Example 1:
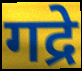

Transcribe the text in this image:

गद्रे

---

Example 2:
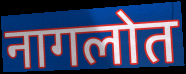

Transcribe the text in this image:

नागलोत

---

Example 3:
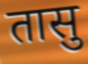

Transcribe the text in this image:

तासु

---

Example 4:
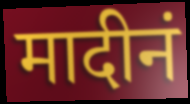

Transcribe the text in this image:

मादीनं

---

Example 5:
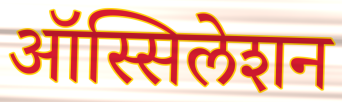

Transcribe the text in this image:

ऑस्सिलेशन